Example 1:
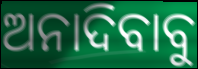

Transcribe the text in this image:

ଅନାଦିବାବୁ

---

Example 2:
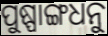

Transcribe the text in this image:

ପୁଷ୍ପାଙ୍ଗଧନୁ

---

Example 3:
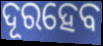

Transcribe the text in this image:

ଦୂରହେବ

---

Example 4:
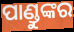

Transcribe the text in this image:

ପାଣ୍ଡୁଙ୍କର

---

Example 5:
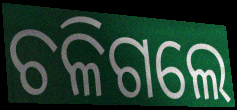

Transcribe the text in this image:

ଚଳିଗଲେ